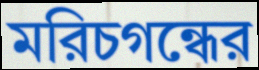
মরিচগন্ধের